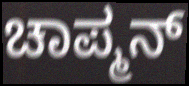
ಚಾಪ್ಮನ್